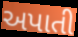
અપાતી